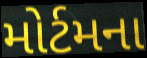
મોર્ટમના